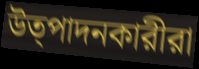
উত্পাদনকারীরা